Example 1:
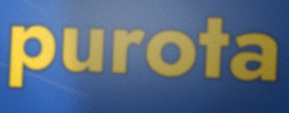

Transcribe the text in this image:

purota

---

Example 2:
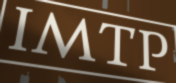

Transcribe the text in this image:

IMTP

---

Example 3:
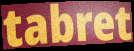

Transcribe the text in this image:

tabret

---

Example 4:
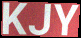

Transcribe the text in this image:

KJY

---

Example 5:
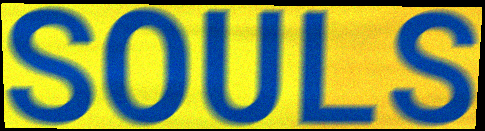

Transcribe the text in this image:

SOULS